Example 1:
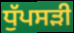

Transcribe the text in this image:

ਧੁੱਪਸੜੀ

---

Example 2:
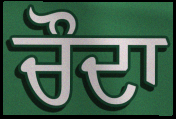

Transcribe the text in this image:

ਚੌਦਾ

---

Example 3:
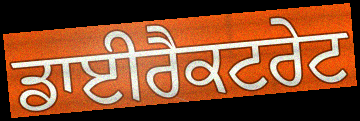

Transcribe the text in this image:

ਡਾਈਰੈਕਟਰੇਟ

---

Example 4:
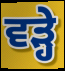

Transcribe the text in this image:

ਵੜ੍ਹੇ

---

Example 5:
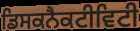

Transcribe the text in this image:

ਡਿਸਕਨੈਕਟੀਵਿਟੀ